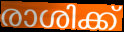
രാശിക്ക്